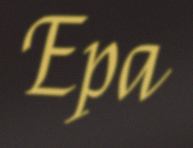
Epa